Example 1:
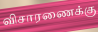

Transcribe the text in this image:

விசாரணைக்கு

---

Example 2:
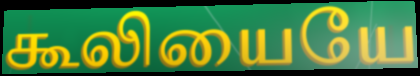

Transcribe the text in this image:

கூலியையே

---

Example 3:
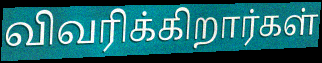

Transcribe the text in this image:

விவரிக்கிறார்கள்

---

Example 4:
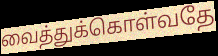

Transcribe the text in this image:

வைத்துக்கொள்வதே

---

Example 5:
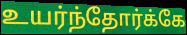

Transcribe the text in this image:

உயர்ந்தோர்க்கே